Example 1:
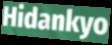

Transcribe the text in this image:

Hidankyo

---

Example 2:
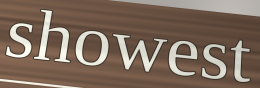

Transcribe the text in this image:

showest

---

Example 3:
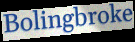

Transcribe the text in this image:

Bolingbroke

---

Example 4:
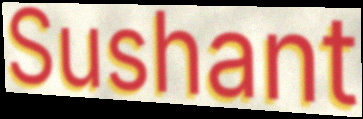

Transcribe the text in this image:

Sushant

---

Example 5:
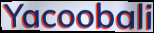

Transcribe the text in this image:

Yacoobali